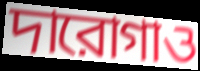
দারোগাও